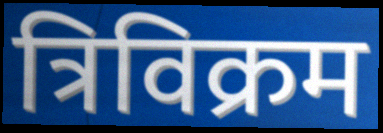
त्रिविक्रम